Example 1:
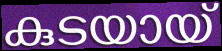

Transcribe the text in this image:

കുടയായ്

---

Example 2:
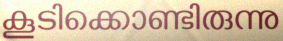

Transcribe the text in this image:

കൂടിക്കൊണ്ടിരുന്നു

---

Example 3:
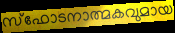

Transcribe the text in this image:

സ്ഫോടനാത്മകവുമായ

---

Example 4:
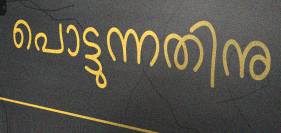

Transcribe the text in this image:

പൊട്ടുന്നതിനു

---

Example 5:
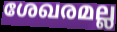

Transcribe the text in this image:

ശേഖരമല്ല